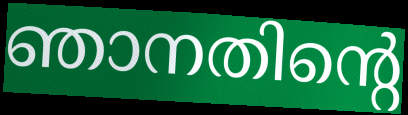
ഞാനതിന്റെ